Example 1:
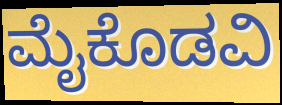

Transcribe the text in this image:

ಮೈಕೊಡವಿ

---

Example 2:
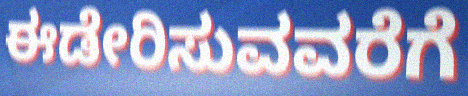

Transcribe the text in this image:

ಈಡೇರಿಸುವವರೆಗೆ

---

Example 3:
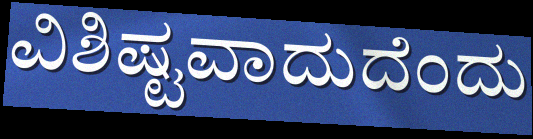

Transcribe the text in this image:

ವಿಶಿಷ್ಟವಾದುದೆಂದು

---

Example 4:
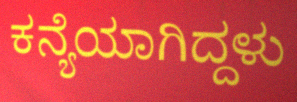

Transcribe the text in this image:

ಕನ್ಯೆಯಾಗಿದ್ದಳು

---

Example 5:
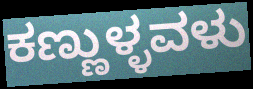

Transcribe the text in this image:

ಕಣ್ಣುಳ್ಳವಳು